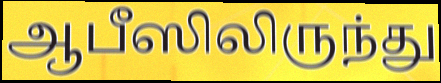
ஆபீஸிலிருந்து